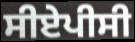
ਸੀਏਪੀਸੀ